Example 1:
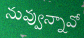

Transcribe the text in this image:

నువ్వున్నావో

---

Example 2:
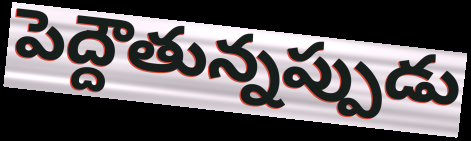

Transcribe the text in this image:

పెద్దౌతున్నప్పుడు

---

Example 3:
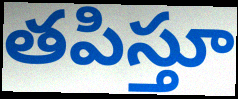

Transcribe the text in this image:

తపిస్తూ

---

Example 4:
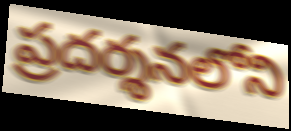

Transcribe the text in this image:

ప్రదర్శనలోని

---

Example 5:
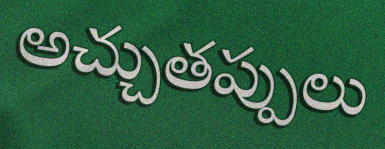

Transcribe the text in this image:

అచ్చుతప్పులు